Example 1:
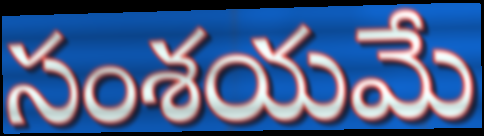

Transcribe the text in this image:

సంశయమే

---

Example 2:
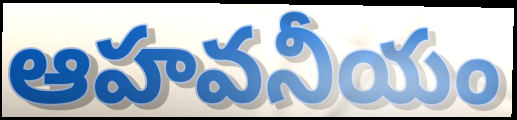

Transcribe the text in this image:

ఆహవనీయం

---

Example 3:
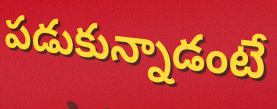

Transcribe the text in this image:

పడుకున్నాడంటే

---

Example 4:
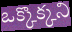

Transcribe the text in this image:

ఒక్కొక్కని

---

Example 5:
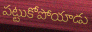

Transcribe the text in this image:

పట్టుకోపోయాడు